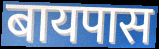
बायपास